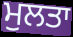
ਮੁਲਤਾ